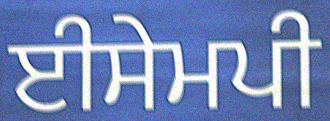
ਈਸੇਮਪੀ